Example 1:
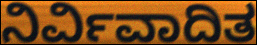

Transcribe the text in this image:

ನಿರ್ವಿವಾದಿತ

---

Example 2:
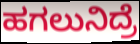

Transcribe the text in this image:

ಹಗಲುನಿದ್ರೆ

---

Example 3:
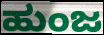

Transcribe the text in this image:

ಹುಂಜ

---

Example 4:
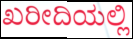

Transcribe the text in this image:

ಖರೀದಿಯಲ್ಲಿ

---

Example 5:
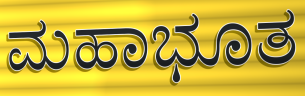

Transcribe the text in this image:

ಮಹಾಭೂತ